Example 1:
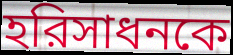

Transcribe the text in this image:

হরিসাধনকে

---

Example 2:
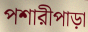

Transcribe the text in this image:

পশারীপাড়া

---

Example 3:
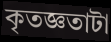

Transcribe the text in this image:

কৃতজ্ঞতাটা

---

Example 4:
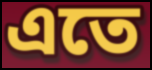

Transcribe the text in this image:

এতে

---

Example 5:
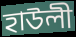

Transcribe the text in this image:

হাউলী